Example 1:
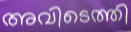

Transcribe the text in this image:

അവിടെത്തി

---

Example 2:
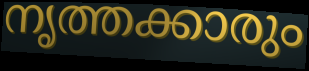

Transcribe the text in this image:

നൃത്തക്കാരും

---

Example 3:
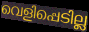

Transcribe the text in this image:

വെളിപ്പെടില്ല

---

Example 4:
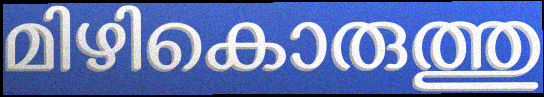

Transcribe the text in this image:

മിഴികൊരുത്തു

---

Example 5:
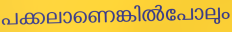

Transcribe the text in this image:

പക്കലാണെങ്കിൽപോലും